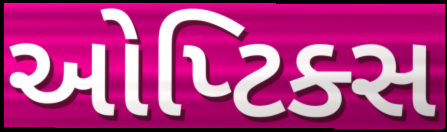
ઓપ્ટિક્સ